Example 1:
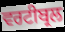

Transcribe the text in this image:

ਵਰਟੀਬ੍ਰਲ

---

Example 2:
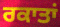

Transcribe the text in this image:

ਰਕਾਤਾਂ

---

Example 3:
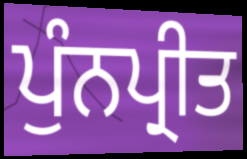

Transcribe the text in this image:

ਪੁੰਨਪ੍ਰੀਤ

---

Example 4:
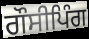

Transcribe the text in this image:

ਗੌਸੀਪਿੰਗ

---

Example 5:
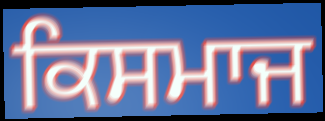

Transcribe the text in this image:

ਕਿਸਮਾਜ